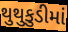
થુથુકુડીમાં